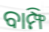
ବାମ୍ଫି